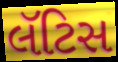
લૅટિસ